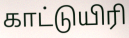
காட்டுயிரி